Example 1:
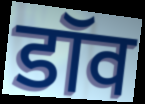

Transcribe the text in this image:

डॉव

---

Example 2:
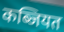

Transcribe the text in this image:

कब्जियत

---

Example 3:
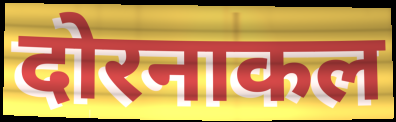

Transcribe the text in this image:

दोरनाकल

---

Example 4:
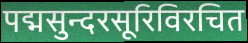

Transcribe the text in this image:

पद्मसुन्दरसूरिविरचित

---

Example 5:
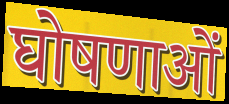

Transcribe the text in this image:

घोषणाओं